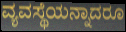
ವ್ಯವಸ್ಥೆಯನ್ನಾದರೂ